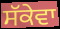
ਸੱਕੇਵਾ